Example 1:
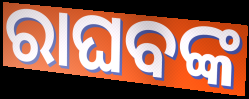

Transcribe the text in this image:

ରାଘବଙ୍କ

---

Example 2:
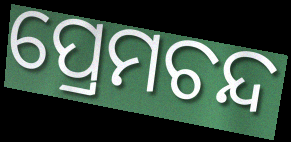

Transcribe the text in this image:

ପ୍ରେମଚନ୍ଦ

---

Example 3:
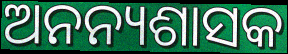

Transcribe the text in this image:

ଅନନ୍ୟଶାସକ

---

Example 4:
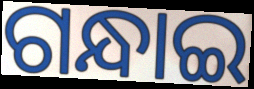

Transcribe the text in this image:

ଗନ୍ଧାଇ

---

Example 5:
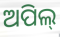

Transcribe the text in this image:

ଅପିଲ୍